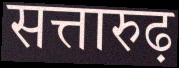
सत्तारुढ़